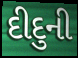
દીદુની